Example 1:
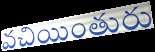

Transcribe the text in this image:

వచియింతురు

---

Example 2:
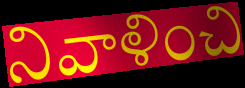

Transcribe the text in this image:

నివాళించి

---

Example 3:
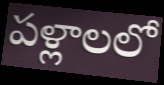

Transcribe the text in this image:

పళ్లాలలో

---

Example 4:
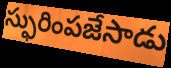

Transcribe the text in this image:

స్ఫురింపజేసాడు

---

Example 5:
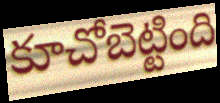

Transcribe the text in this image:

కూచోబెట్టింది